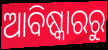
ଆବିଷ୍କାରରୁ